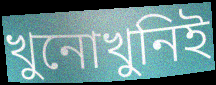
খুনোখুনিই